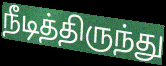
நீடித்திருந்து